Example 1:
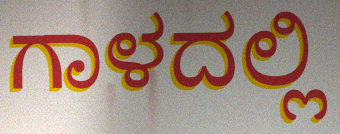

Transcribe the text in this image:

ಗಾಳದಲ್ಲಿ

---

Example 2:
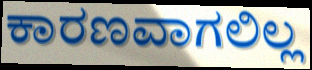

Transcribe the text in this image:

ಕಾರಣವಾಗಲಿಲ್ಲ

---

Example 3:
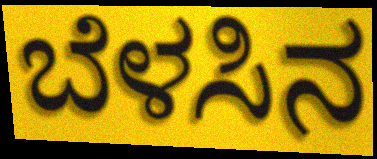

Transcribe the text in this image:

ಬೆಳಸಿನ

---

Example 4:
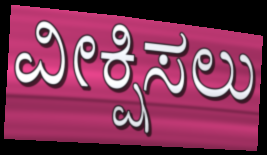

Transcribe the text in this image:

ವೀಕ್ಷಿಸಲು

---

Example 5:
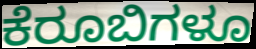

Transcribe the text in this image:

ಕೆರೂಬಿಗಳೂ